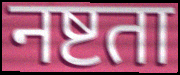
नष्टता